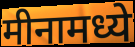
मीनामध्ये